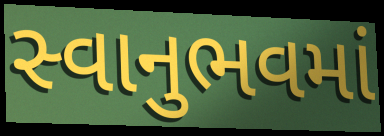
સ્વાનુભવમાં